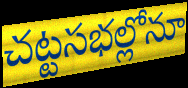
చట్టసభల్లోనూ